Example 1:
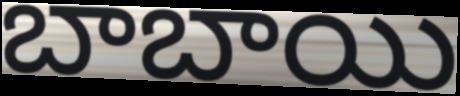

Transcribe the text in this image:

బాబాయి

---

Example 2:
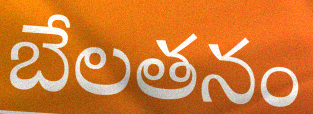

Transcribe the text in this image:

బేలతనం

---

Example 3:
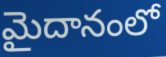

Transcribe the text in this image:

మైదానంలో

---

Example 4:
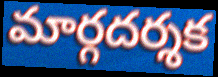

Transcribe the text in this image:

మార్గదర్శక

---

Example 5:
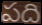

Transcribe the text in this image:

పది